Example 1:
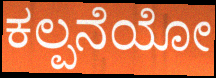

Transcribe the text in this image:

ಕಲ್ಪನೆಯೋ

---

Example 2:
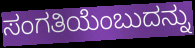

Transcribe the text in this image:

ಸಂಗತಿಯೆಂಬುದನ್ನು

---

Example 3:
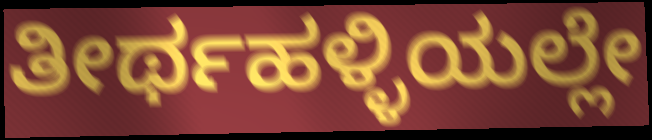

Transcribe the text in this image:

ತೀರ್ಥಹಳ್ಳಿಯಲ್ಲೇ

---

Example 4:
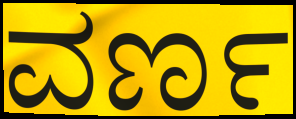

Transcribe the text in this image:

ವರ್ಣ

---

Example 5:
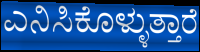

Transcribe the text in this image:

ಎನಿಸಿಕೊಳ್ಳುತ್ತಾರೆ